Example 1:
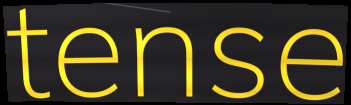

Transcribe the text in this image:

tense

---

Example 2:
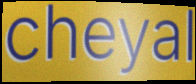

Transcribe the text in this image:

cheyal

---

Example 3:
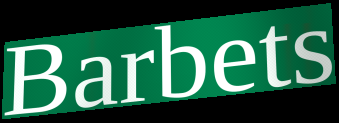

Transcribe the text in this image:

Barbets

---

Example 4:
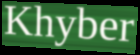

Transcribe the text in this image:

Khyber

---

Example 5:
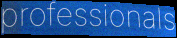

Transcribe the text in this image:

professionals